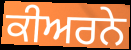
ਕੀਅਰਨੇ